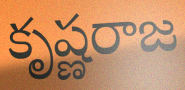
కృష్ణరాజ